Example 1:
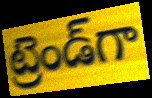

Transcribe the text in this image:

ట్రెండ్‌గా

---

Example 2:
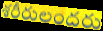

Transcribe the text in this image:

శరీరులందరు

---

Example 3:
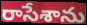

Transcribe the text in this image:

రాసేశాను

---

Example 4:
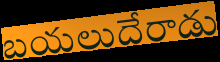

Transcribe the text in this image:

బయలుదేరాడు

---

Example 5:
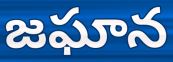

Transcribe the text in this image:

జఘాన